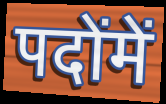
पदोंमें